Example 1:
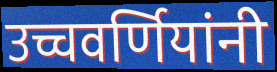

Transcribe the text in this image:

उच्चवर्णियांनी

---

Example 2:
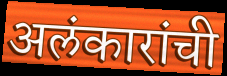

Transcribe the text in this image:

अलंकारांची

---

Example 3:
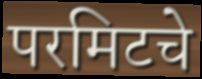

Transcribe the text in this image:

परमिटचे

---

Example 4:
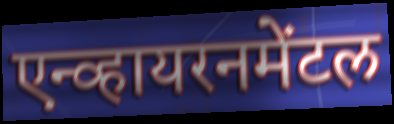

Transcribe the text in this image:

एन्व्हायरनमेंटल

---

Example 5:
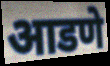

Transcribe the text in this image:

आडणे